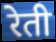
रेती